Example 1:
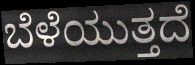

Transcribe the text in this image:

ಬೆಳೆಯುತ್ತದೆ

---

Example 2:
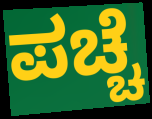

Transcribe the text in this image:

ಪಚ್ಚೆ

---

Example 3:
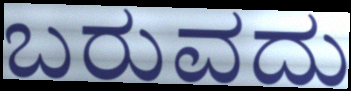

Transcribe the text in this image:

ಬರುವದು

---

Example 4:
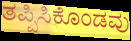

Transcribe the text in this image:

ತಪ್ಪಿಸಿಕೊಂಡವು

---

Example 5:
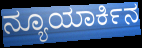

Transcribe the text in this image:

ನ್ಯೂಯಾರ್ಕಿನ